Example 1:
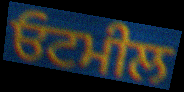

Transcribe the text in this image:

ਓਟਮੀਲ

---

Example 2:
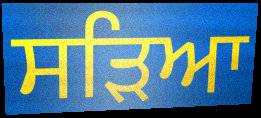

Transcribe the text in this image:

ਸੜਿਆ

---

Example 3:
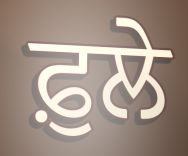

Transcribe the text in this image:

ਫ਼ੁਲੇ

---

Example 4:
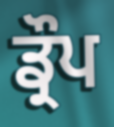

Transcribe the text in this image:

ਡ੍ਰੌਪ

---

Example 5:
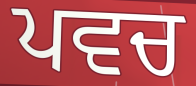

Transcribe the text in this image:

ਪਵਚ